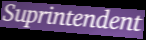
Suprintendent